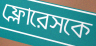
ফ্লোরেসকে